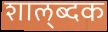
शाल्ब्दक